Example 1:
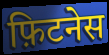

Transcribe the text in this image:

फ़िटनेस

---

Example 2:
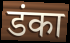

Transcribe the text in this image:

डंका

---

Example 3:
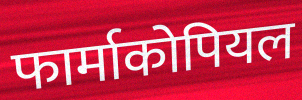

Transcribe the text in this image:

फार्माकोपियल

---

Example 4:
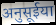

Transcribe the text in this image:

अनुसूईया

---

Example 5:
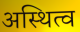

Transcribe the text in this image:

अस्थित्व